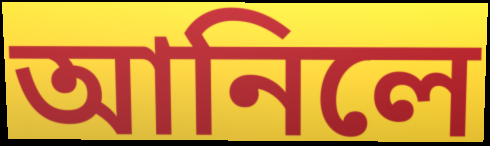
আনিলে